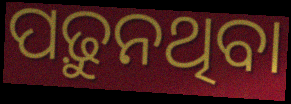
ପଢ଼ୁନଥିବା